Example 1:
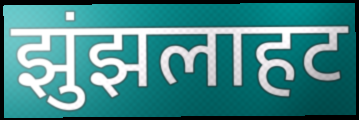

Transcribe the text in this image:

झुंझलाहट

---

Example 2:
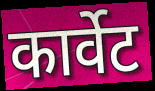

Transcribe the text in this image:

कार्वेट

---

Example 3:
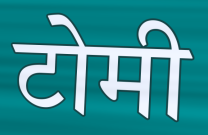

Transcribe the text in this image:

टोमी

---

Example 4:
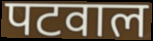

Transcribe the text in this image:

पटवाल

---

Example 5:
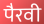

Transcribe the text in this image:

पैरवी